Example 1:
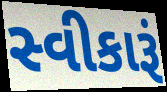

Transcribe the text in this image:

સ્વીકારૂં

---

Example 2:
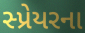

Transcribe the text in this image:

સ્પ્રેયરના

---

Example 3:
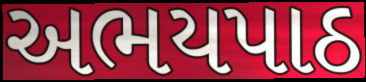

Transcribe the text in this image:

અભયપાઠ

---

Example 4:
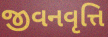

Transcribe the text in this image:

જીવનવૃત્તિ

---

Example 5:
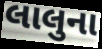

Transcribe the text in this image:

લાલુના